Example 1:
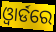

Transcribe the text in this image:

ଓ୍ବାର୍ଡରେ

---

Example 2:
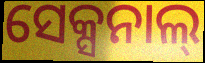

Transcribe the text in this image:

ସେକ୍ସନାଲ୍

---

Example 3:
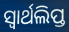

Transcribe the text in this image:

ସ୍ୱାର୍ଥଲିପ୍ତ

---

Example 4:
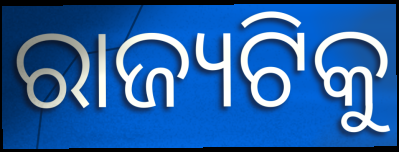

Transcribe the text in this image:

ରାଜ୍ୟଟିକୁ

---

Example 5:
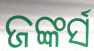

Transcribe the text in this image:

ଜଙ୍କର୍ସ